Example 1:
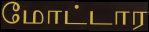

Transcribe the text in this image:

மோட்டார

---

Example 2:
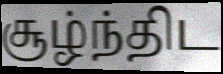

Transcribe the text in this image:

சூழ்ந்திட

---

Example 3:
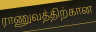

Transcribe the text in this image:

ராணுவத்திற்கான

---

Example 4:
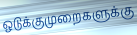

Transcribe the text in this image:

ஒடுக்குமுறைகளுக்கு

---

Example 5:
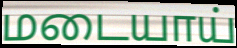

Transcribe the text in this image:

மடையாய்